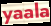
yaala